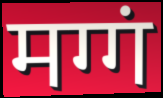
मग्गं